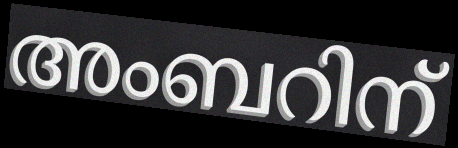
അംബറിന്